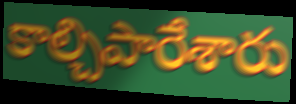
కాల్చిపారేశారు